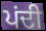
ਪਂਦੀ